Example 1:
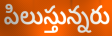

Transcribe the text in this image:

పిలుస్తున్నరు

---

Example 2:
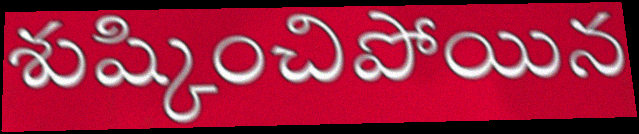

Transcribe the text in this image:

శుష్కించిపోయిన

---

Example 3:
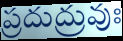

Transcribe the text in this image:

ప్రదుద్రువుః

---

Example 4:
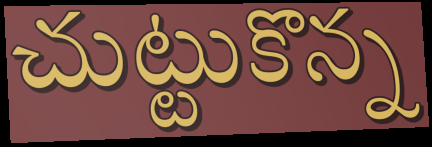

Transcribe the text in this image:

చుట్టుకొన్న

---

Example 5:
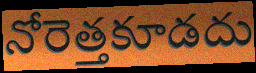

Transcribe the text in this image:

నోరెత్తకూడదు